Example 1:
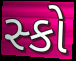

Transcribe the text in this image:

સ્કો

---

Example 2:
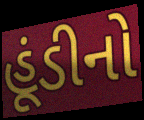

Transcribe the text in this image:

હૂંડીનો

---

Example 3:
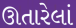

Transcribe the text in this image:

ઊતારેલાં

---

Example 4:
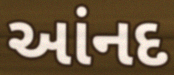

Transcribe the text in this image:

આંનદ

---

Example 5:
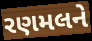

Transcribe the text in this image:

રણમલને